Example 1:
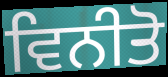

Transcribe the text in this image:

ਵਿਨੀਤੋ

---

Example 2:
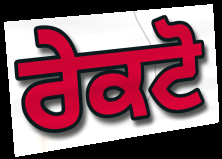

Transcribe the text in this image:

ਰੇਕਟੋ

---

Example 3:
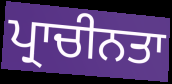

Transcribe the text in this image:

ਪ੍ਰਾਚੀਨਤਾ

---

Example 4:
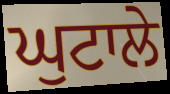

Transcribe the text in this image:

ਘੁਟਾਲੇ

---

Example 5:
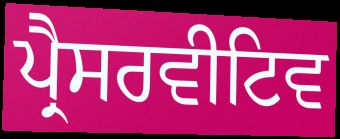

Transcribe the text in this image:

ਪ੍ਰੈਸਰਵੀਟਿਵ